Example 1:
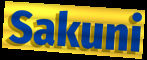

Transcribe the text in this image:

Sakuni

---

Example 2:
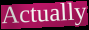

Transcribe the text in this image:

Actually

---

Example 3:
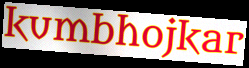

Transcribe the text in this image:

kumbhojkar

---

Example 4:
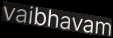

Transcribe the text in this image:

vaibhavam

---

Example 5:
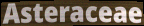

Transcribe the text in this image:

Asteraceae